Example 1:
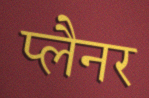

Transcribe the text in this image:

प्लैनर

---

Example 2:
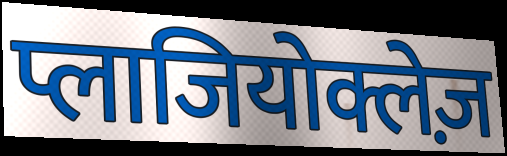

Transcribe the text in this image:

प्लाजियोक्लेज़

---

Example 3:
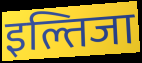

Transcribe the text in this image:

इल्तिजा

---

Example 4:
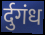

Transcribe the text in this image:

र्दुगंध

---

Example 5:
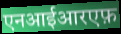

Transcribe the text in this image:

एनआईआरएफ़